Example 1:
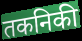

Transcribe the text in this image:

तकनिकी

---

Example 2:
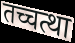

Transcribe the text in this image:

तच्चत्था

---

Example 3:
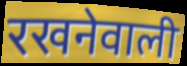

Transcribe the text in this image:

रखनेवाली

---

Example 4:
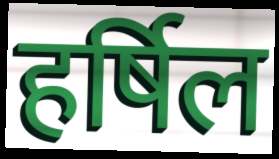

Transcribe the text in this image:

हर्षिल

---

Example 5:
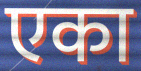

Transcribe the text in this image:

एका